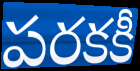
పరకకీ